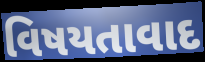
વિષયતાવાદ